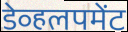
डेव्‍हलपमेंट